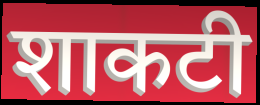
शाकटी